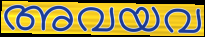
അവയവ